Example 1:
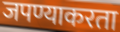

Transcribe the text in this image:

जपण्याकरता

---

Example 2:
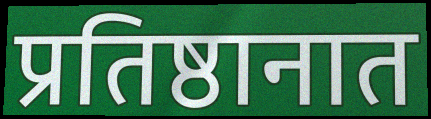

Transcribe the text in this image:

प्रतिष्ठानात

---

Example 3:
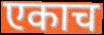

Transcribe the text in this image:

एकाच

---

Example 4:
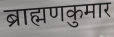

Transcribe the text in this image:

ब्राह्मणकुमार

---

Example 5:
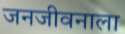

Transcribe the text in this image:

जनजीवनाला